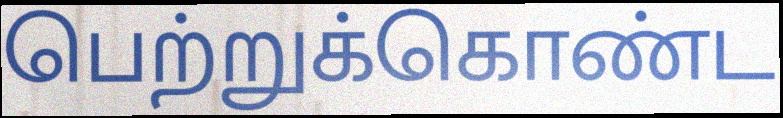
பெற்றுக்கொண்ட